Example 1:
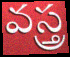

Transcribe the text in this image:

వస్త్ర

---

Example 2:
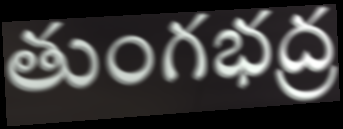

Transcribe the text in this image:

తుంగభద్ర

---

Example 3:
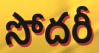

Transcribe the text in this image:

సోదరీ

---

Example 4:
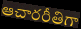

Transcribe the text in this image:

ఆచారరీతిగా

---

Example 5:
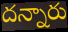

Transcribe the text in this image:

దన్నారు